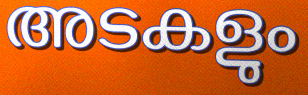
അടകളും